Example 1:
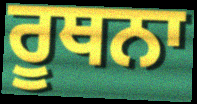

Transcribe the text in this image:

ਰੂਥਨਾ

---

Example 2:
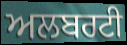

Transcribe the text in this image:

ਅਲਬਰਟੀ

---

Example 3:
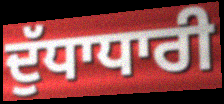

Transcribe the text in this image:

ਦੁੱਧਾਧਾਰੀ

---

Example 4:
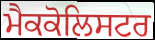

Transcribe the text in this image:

ਮੈਕਕੋਲਿਸਟਰ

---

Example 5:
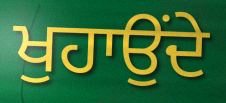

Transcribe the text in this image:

ਖੁਹਾਉਂਦੇ